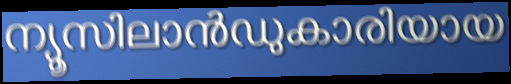
ന്യൂസിലാൻഡുകാരിയായ